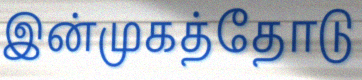
இன்முகத்தோடு